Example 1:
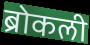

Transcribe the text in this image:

ब्रोकली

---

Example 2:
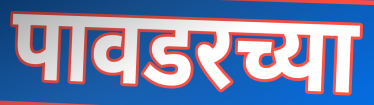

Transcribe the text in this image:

पावडरच्या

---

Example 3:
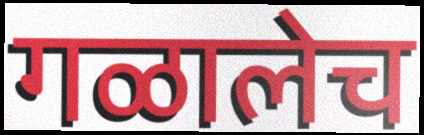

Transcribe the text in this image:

गळालेच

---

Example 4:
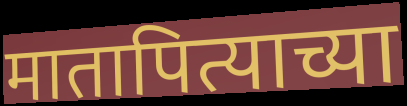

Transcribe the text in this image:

मातापित्याच्या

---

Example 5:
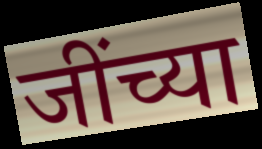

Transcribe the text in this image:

जींच्या